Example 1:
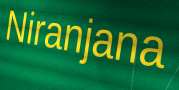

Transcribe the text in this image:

Niranjana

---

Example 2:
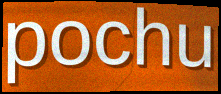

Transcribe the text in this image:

pochu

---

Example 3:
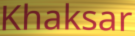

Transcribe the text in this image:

Khaksar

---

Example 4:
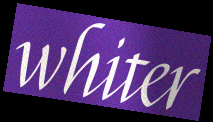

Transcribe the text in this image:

whiter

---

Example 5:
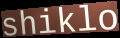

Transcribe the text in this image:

shiklo